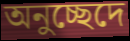
অনুচ্ছেদে